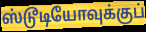
ஸ்டூடியோவுக்குப்